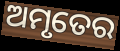
ଅମୃତେର